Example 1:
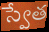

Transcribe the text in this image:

స్వేత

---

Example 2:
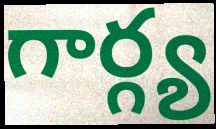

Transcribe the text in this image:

గార్గ్య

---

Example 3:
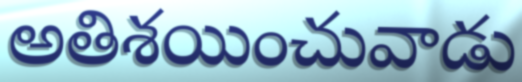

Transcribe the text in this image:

అతిశయించువాడు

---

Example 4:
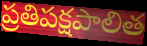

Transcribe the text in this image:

ప్రతిపక్షపాలిత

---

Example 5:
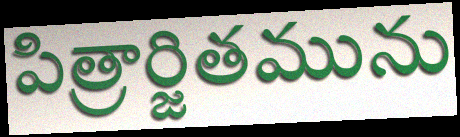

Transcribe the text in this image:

పిత్రార్జితమును